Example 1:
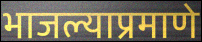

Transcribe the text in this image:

भाजल्याप्रमाणे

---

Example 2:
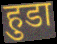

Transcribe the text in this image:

हुडा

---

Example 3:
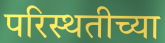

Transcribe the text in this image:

परिस्थतीच्या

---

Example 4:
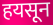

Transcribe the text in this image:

हयसून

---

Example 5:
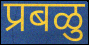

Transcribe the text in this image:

प्रबळु